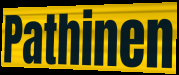
Pathinen